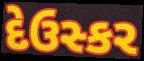
દેઉસ્કર